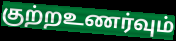
குற்றஉணர்வும்